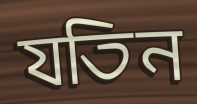
যতিন